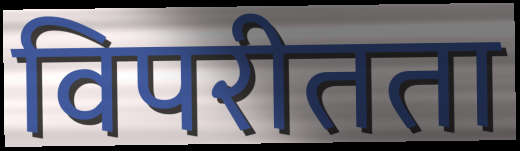
विपरीतता